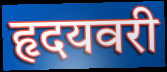
हृदयवरी